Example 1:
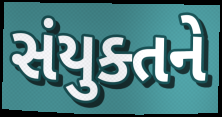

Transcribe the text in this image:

સંયુક્તને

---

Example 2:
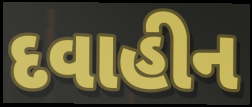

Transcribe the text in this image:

દવાહીન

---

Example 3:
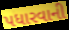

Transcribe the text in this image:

પધારવાની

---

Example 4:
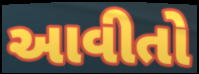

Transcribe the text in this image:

આવીતો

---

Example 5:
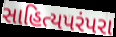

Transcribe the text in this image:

સાહિત્યપરંપરા